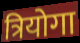
त्रियोगा